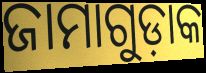
ଜାମାଗୁଡ଼ାକ